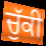
ਚੁੱਕੀ